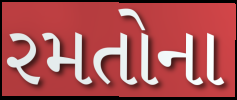
રમતોના